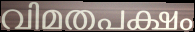
വിമതപക്ഷം